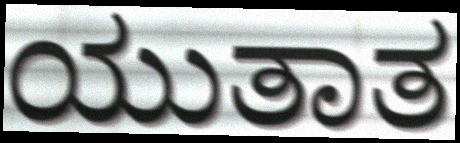
ಯುತಾತ